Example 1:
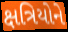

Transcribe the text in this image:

ક્ષત્રિયોને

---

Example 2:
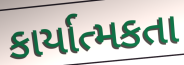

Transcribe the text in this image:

કાર્યાત્મકતા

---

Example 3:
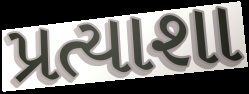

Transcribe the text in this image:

પ્રત્યાશા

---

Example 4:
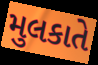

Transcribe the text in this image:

મુલકાતે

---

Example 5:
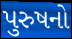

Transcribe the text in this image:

પુરુષનો